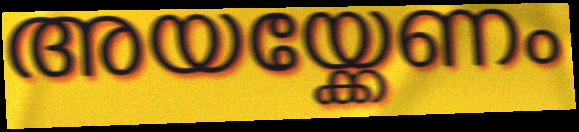
അയയ്ക്കേണം